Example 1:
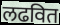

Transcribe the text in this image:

लढवित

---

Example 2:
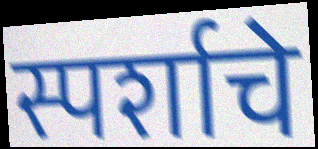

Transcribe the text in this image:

स्पर्शाचे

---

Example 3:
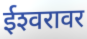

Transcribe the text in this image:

ईश्‍वरावर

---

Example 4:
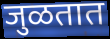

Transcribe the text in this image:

जुळतात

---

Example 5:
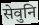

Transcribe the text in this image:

सेवुनि